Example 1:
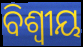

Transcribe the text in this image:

ବିଶ୍ଵୀୟ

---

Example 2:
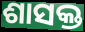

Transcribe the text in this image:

ଶାସକ୍ତ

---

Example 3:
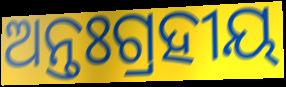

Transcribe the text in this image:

ଅନ୍ତଃଗ୍ରହୀୟ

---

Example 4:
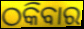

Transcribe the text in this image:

ଠକିବାର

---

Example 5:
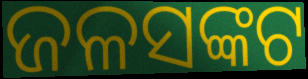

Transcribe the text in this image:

ଜଳସଙ୍କଟ